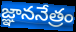
జ్ఞాననేత్రం